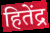
हितेंद्र